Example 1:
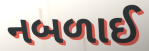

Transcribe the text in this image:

નબળાઈ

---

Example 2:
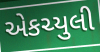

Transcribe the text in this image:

એકચ્યુલી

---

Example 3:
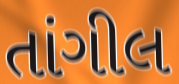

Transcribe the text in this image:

તાંગીલ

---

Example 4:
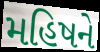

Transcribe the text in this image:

મહિષને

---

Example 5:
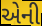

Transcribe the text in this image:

એની